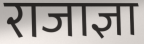
राजाज्ञा